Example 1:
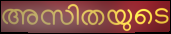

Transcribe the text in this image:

അസിതയുടെ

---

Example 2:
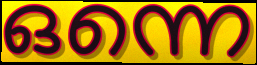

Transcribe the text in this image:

ഒന്നെ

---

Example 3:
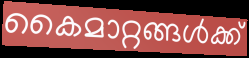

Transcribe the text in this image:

കൈമാറ്റങ്ങൾക്ക്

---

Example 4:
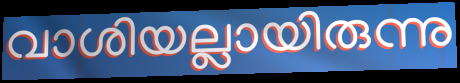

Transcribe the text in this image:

വാശിയല്ലായിരുന്നു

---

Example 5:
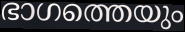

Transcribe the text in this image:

ഭാഗത്തെയും